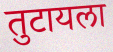
तुटायला